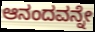
ಆನಂದವನ್ನೇ